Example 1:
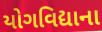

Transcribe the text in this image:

યોગવિદ્યાના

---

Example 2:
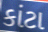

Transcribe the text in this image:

કાંટા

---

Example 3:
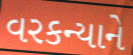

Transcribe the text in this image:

વરકન્યાને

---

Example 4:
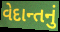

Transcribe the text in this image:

વેદાન્તનું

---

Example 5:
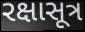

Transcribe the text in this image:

રક્ષાસૂત્ર